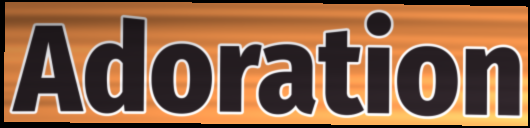
Adoration